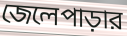
জেলেপাড়ার